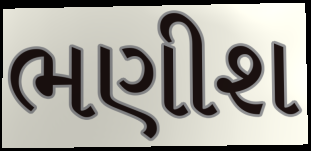
ભણીશ